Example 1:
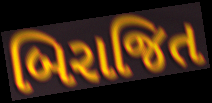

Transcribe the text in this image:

બિરાજિત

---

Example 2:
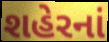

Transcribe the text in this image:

શહેરનાં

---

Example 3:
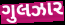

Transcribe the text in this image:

ગુલઝાર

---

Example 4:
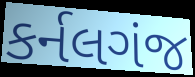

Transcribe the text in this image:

કર્નલગંજ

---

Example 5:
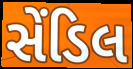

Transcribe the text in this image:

સેંડિલ